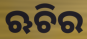
ଋଚିର